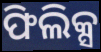
ଫିଲିକ୍ସ